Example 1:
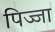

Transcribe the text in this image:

पिज्जा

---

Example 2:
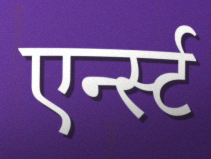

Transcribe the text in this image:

एर्न्स्ट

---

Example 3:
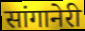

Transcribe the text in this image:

सांगानेरी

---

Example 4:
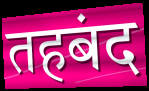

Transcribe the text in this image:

तहबंद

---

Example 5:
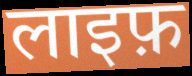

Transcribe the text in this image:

लाइफ़